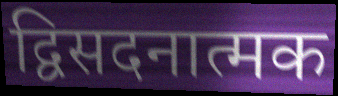
द्विसदनात्मक